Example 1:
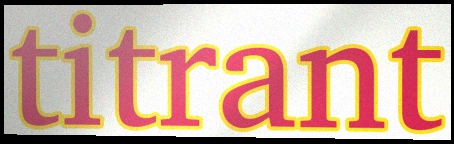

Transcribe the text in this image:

titrant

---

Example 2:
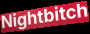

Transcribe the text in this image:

Nightbitch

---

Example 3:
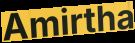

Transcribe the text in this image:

Amirtha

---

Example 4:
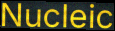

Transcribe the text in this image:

Nucleic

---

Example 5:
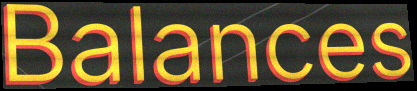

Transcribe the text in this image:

Balances